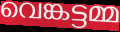
വെങ്കട്ടമ്മ